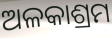
ଅଳକାଶ୍ରମ